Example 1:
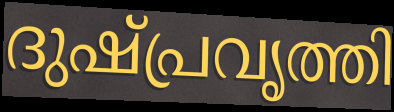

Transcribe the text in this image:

ദുഷ്പ്രവൃത്തി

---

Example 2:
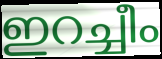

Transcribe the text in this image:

ഇറച്ചീം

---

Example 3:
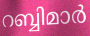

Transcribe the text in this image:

റബ്ബിമാർ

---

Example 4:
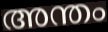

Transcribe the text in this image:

അന്തം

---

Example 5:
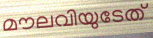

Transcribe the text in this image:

മൗലവിയുടേത്